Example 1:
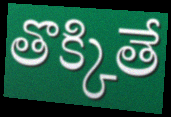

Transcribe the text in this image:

తొక్కితే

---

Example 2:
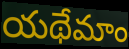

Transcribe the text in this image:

యథేమాం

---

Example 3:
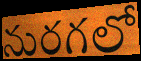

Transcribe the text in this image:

నురగలో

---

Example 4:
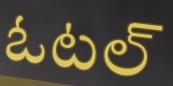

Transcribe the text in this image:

ఓటల్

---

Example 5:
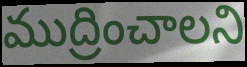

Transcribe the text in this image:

ముద్రించాలని